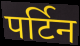
पर्टिन